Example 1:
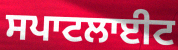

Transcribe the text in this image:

ਸਪਾਟਲਾਈਟ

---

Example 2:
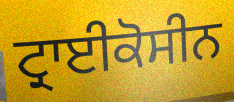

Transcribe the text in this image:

ਟ੍ਰਾਈਕੋਸੀਨ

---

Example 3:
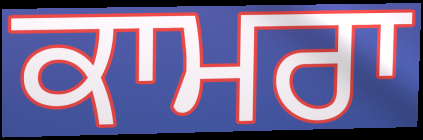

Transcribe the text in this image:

ਕਾਮਰਾ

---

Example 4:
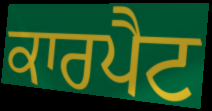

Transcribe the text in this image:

ਕਾਰਪੈਟ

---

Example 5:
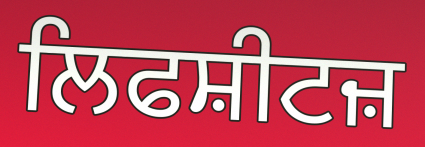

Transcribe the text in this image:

ਲਿਫਸ਼ੀਟਜ਼